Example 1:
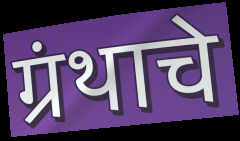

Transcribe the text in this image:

ग्रंथाचे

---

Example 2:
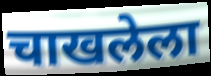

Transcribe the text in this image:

चाखलेला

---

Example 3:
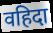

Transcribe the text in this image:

वहिदा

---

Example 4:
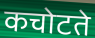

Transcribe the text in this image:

कचोटते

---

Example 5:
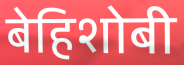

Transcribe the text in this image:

बेहिशोबी